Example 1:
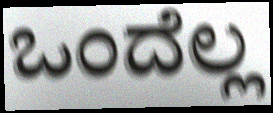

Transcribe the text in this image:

ಒಂದೆಲ್ಲ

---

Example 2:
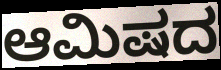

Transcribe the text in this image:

ಆಮಿಷದ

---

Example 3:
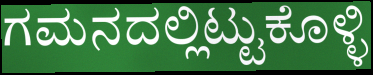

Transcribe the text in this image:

ಗಮನದಲ್ಲಿಟ್ಟುಕೊಳ್ಳಿ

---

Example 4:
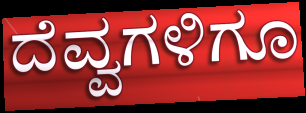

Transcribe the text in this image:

ದೆವ್ವಗಳಿಗೂ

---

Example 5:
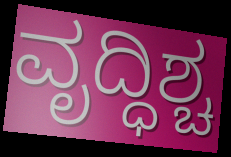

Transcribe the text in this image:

ವೃದ್ಧಿಶ್ಚ